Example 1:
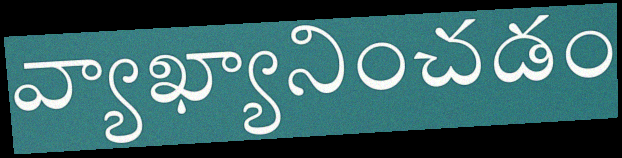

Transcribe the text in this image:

వ్యాఖ్యానించడం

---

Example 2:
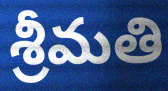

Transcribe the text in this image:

శ్రీమతి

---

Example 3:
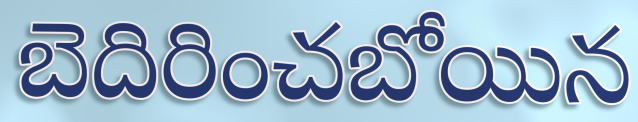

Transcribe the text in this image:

బెదిరించబోయిన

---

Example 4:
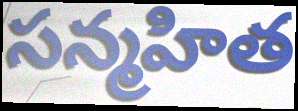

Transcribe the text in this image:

సన్మహిత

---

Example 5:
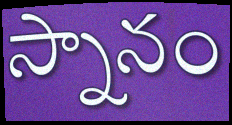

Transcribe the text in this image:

స్నానం